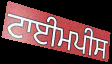
ਟਾਈਮਪੀਸ